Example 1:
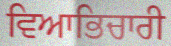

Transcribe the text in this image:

ਵਿਆਭਿਚਾਰੀ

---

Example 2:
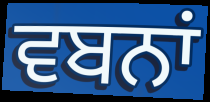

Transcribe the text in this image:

ਵਬਨਾਂ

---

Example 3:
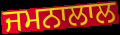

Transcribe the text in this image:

ਜਮਨਾਲਾਲ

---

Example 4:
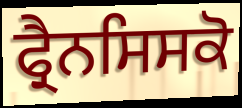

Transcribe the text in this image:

ਫ੍ਰੈਨਸਿਸਕੋ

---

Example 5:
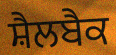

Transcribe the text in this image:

ਸ਼ੈਲਬੈਕ